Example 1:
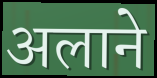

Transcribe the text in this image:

अलाने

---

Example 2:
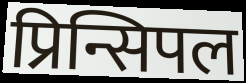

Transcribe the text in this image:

प्रिन्सिपल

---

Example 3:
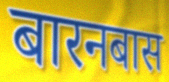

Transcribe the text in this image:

बारनबास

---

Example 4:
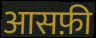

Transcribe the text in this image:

आसफ़ी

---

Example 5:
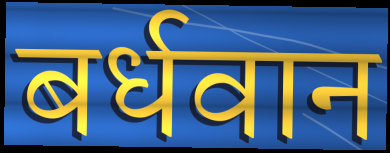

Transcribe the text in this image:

बर्धवान